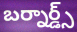
బర్నార్డ్స్